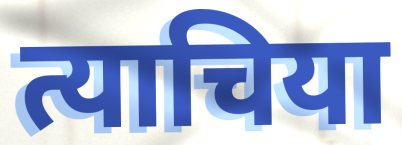
त्याचिया